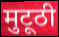
मुटूठी